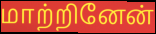
மாற்றினேன்